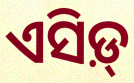
ଏସିଡ଼୍